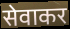
सेवाकर